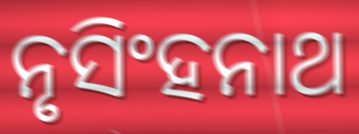
ନୃସିଂହନାଥ